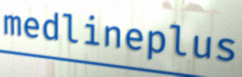
medlineplus